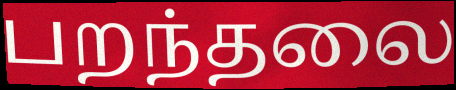
பறந்தலை